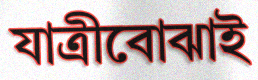
যাত্রীবোঝাই